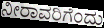
ನೀರಾವರಿಗೆಂದು